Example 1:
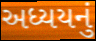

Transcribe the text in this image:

અધ્યયનું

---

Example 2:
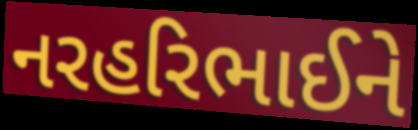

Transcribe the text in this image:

નરહરિભાઈને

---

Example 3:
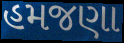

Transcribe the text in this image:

હમજણા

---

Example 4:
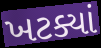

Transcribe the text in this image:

ખટક્યાં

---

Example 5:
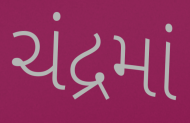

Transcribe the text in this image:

ચંદ્રમાં